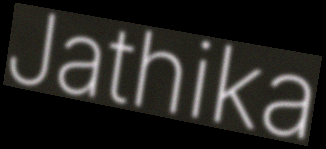
Jathika